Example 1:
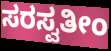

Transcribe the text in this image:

ಸರಸ್ವತೀಂ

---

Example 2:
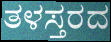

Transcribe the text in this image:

ತಳಸ್ತರದ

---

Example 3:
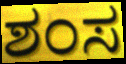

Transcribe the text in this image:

ಶಂಸ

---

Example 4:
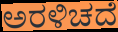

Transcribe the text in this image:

ಅರಳಿಚದೆ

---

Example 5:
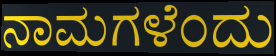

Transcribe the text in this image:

ನಾಮಗಳೆಂದು